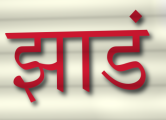
झाडं